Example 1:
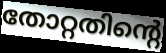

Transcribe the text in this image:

തോറ്റതിന്റെ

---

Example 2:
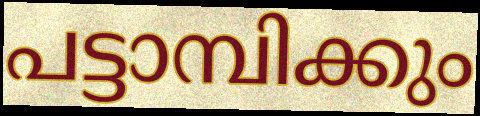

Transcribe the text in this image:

പട്ടാമ്പിക്കും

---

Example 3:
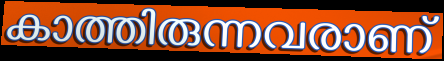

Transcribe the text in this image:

കാത്തിരുന്നവരാണ്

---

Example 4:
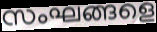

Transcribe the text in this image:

സംഘങ്ങളെ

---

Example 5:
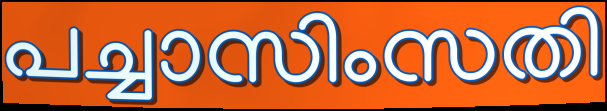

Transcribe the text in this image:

പച്ചാസിംസതി